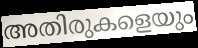
അതിരുകളെയും